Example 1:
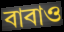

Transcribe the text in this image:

বাবাও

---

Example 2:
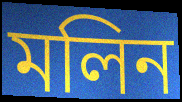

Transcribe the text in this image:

মলিন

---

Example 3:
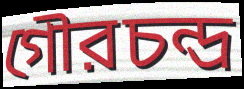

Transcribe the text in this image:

গৌরচন্দ্র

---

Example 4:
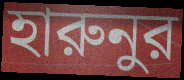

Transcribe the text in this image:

হারুনুর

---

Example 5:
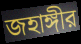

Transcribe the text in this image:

জহাঙ্গীর